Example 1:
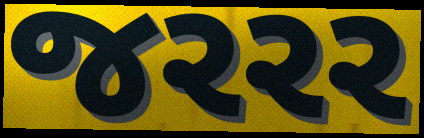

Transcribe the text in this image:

જરરર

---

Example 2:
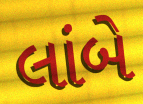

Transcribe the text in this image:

લાંબે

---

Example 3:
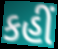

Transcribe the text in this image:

કહીં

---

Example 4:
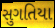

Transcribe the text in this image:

સુગતિયા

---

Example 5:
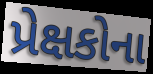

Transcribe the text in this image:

પ્રેક્ષકોના